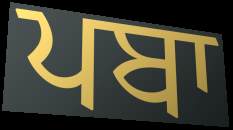
ਪਬਾ